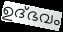
ഉദ്ഭവം